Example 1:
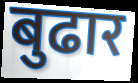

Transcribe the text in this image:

बुढार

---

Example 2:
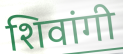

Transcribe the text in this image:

शिवांगी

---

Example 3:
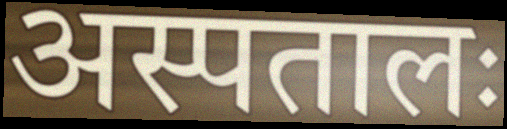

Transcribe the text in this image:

अस्पतालः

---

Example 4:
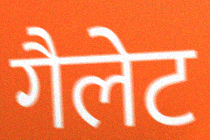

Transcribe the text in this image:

गैलेट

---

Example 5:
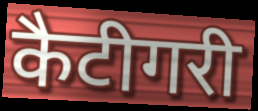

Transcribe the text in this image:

कैटीगरी